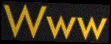
Www